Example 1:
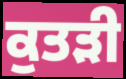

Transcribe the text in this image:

ਕੁਤੜੀ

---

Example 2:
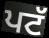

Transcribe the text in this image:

ਪਟੱ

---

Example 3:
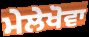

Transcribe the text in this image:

ਮੇਲੇਖੋਵਾ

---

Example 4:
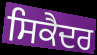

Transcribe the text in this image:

ਸਿਕੈਦਰ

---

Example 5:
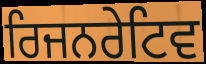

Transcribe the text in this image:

ਰਿਜਨਰੇਟਿਵ